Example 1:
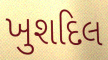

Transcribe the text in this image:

ખુશદિલ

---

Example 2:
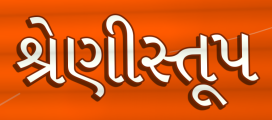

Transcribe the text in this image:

શ્રેણીસ્તૂપ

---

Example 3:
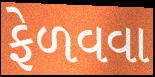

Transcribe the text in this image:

ફેળવવા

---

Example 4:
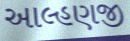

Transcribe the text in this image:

આલ્હણજી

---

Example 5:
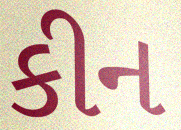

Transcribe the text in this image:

કીન